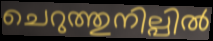
ചെറുത്തുനില്പിൽ